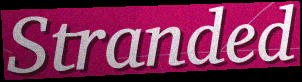
Stranded